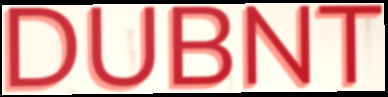
DUBNT